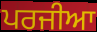
ਪਰਜੀਆ